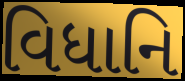
વિધાનિ